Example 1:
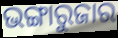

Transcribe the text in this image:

ଭଙ୍ଗାରୁଜାର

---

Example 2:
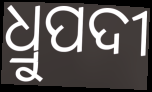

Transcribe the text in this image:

ଧ୍ରୁପଦୀ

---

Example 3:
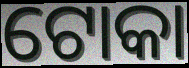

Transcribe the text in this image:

ଟୋକା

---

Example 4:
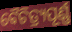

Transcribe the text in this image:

ବୈଚିତ୍ର୍ୟପୂର୍ଣ୍ଣ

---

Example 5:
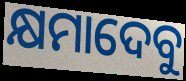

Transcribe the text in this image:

କ୍ଷମାଦେବୁ